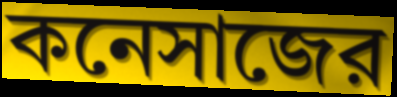
কনেসাজের